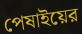
পেষাইয়ের